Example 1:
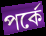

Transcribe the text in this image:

পর্কে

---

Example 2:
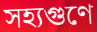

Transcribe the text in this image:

সহ্যগুণে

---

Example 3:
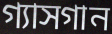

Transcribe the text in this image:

গ্যাসগান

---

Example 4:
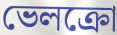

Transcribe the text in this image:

ভেলক্রো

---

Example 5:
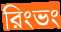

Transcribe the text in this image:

রিংভং